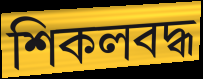
শিকলবদ্ধ